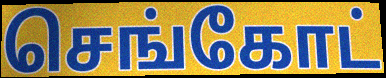
செங்கோட்